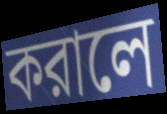
করালে